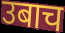
उबाच